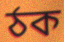
ঠক